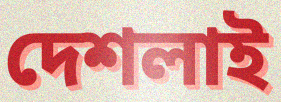
দেশলাই